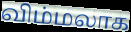
விம்மலாக